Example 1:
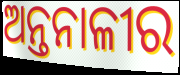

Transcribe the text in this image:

ଅନ୍ତନାଳୀର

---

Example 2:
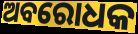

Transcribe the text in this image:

ଅବରୋଧକ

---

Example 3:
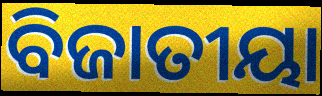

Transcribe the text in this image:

ବିଜାତୀୟା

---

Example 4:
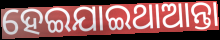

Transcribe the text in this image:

ହେଇଯାଇଥାଆନ୍ତା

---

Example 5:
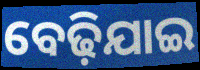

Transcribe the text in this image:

ବେଢ଼ିଯାଇ